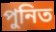
পুনিত